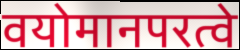
वयोमानपरत्वे